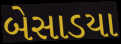
બેસાડયા